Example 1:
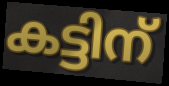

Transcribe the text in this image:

കട്ടിന്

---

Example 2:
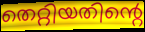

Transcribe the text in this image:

തെറ്റിയതിന്റെ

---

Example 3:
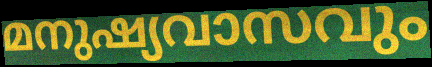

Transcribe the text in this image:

മനുഷ്യവാസവും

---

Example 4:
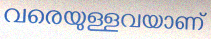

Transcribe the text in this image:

വരെയുള്ളവയാണ്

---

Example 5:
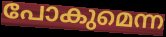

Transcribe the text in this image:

പോകുമെന്ന